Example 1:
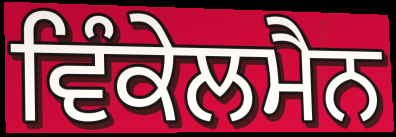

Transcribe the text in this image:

ਵਿੰਕੇਲਮੈਨ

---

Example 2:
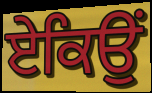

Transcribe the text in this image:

ਏਕਿਉਂ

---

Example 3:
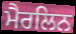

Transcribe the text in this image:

ਮੈਰਲਿਨ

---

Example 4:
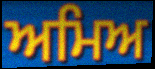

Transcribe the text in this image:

ਅਮਿਅ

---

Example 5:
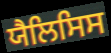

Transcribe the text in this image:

ਯੈਲਿਸਿਸ